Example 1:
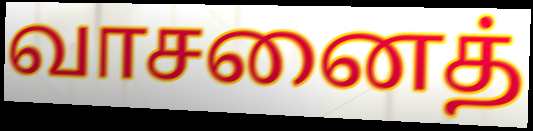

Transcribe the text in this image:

வாசனைத்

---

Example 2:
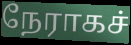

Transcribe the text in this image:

நேராகச்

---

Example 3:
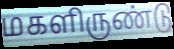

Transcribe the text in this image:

மகளிருண்டு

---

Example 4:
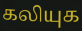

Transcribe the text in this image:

கலியுக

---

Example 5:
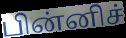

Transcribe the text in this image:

பின்னிச்